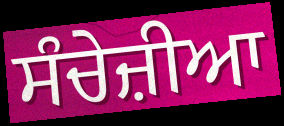
ਸੰਚੇਜ਼ੀਆ